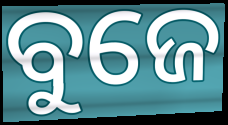
ବୁଜେ